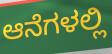
ಆನೆಗಳಲ್ಲಿ